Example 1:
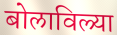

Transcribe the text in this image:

बोलाविल्या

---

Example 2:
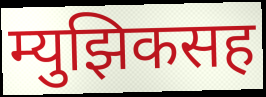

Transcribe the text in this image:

म्युझिकसह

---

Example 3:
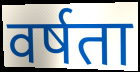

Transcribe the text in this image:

वर्षता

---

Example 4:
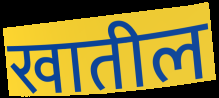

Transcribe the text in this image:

खातील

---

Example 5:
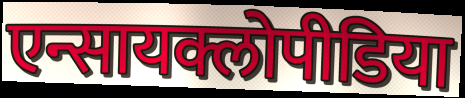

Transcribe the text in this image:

एन्सायक्लोपीडिया